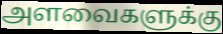
அளவைகளுக்கு